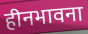
हीनभावना